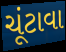
ચૂંટાવા